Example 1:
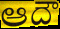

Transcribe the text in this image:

ఆదౌ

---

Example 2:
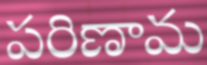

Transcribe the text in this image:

పరిణామ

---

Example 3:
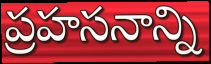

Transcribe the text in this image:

ప్రహసనాన్ని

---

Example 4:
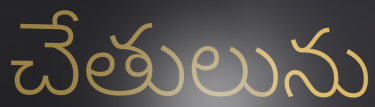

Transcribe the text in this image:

చేతులును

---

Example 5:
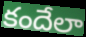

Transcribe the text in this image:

కందేలా